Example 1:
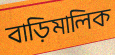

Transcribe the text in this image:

বাড়িমালিক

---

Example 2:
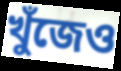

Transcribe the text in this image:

খুঁজেও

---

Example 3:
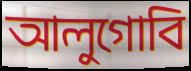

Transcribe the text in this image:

আলুগোবি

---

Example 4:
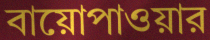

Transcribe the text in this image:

বায়োপাওয়ার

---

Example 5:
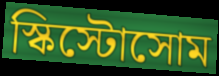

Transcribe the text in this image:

স্কিস্টোসোম